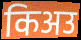
किअउ